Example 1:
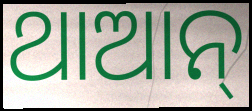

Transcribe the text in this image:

ଥାଆନ୍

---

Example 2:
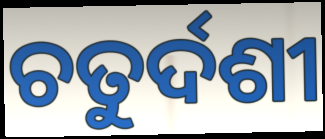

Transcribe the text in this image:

ଚତୁର୍ଦଶୀ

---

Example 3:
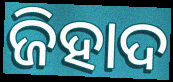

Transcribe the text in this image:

ଜିହାଦ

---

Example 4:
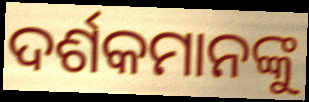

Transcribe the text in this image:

ଦର୍ଶକମାନଙ୍କୁ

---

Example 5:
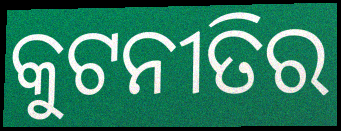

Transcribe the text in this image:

କୁଟନୀତିର